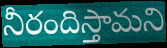
నీరందిస్తామని